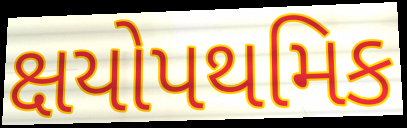
ક્ષયોપથમિક